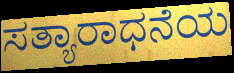
ಸತ್ಯಾರಾಧನೆಯ